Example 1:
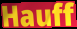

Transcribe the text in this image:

Hauff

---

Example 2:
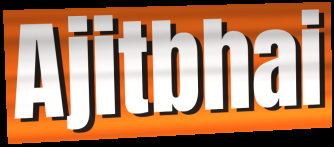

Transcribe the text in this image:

Ajitbhai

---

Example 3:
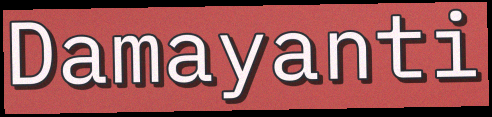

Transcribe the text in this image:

Damayanti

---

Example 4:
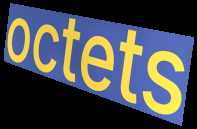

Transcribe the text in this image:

octets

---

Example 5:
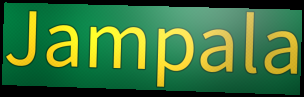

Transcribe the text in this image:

Jampala